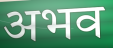
अभव